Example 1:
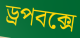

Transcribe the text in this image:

ড্রপবক্সে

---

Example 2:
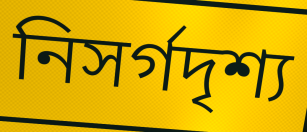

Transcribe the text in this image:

নিসর্গদৃশ্য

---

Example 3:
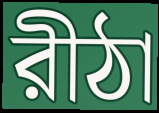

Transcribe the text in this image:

রীঠা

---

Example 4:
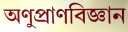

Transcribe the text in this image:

অণুপ্রাণবিজ্ঞান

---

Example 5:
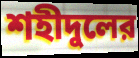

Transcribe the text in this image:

শহীদুলের